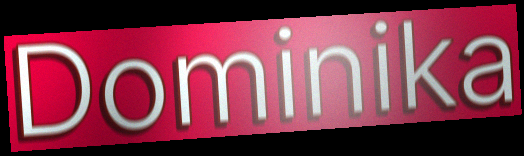
Dominika